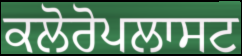
ਕਲੋਰੋਪਲਾਸਟ